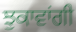
ਝੁਕਾਵਾਂਗੀ